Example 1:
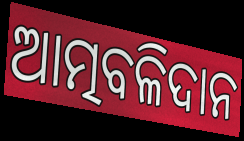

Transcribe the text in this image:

ଆତ୍ମବଳିଦାନ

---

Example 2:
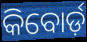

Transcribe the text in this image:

କିବୋର୍ଡ଼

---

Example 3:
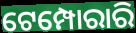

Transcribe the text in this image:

ଟେମ୍ପୋରାରି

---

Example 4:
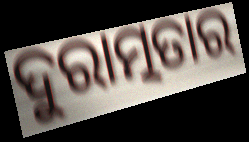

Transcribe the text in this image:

ଦୁରାତ୍ମତାର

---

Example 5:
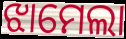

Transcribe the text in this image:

ଝାମେଲା